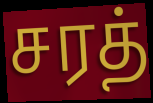
சரத்